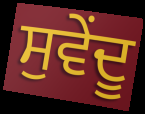
ਸੁਵੇਂਦੂ